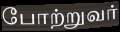
போற்றுவர்